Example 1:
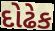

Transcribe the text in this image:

દોઢેક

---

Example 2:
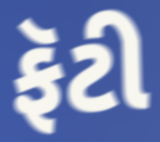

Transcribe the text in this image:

ફૅટી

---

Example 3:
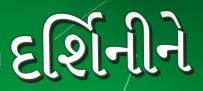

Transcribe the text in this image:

દર્શિનીને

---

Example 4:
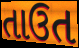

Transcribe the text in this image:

તાઉત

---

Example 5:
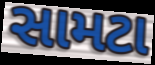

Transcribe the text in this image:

સામટા